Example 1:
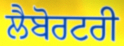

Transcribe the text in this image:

ਲੈਬੋਰਟਰੀ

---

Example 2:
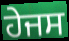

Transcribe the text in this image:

ਹੇਜਸ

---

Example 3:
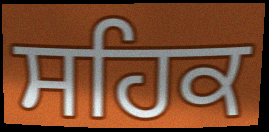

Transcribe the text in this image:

ਸਹਿਕ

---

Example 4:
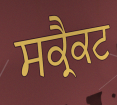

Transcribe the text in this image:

ਸਕ੍ਰੈਕਟ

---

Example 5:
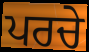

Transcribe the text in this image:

ਪਰਚੇ